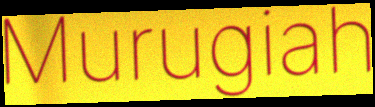
Murugiah